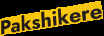
Pakshikere